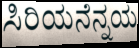
ಸಿರಿಯನೆನ್ನಯ